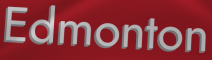
Edmonton